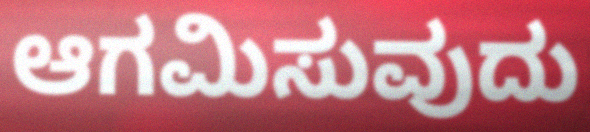
ಆಗಮಿಸುವುದು